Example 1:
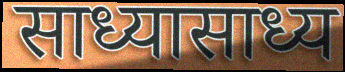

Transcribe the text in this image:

साध्यासाध्य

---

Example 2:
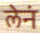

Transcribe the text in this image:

लेनं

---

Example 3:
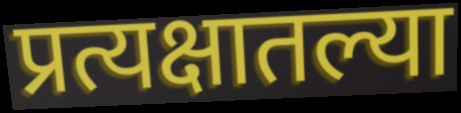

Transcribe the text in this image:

प्रत्यक्षातल्या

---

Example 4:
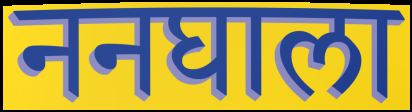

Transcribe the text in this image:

ननघाला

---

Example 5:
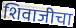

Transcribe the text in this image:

शिवाजीचा